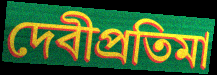
দেবীপ্রতিমা